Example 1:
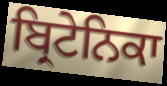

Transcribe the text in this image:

ਬ੍ਰਿਟੇਨਿਕਾ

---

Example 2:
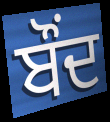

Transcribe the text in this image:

ਬੌਂਦ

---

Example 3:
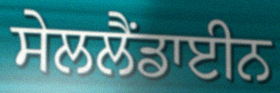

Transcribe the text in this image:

ਸੇਲਲੈਂਡਾਈਨ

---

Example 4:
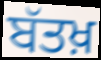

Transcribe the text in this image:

ਬੱਤਖ਼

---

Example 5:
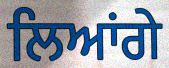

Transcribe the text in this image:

ਲਿਆਂਗੇ